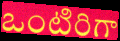
ఒంటిరిగా